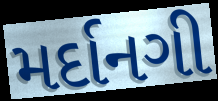
મર્દાનગી